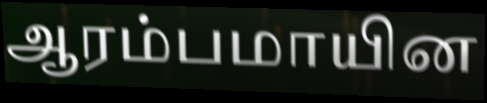
ஆரம்பமாயின